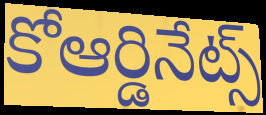
కోఆర్డినేట్స్